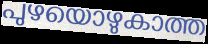
പുഴയൊഴുകാത്ത